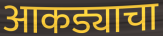
आकड्याचा